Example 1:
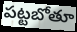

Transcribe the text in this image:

పట్టబోతూ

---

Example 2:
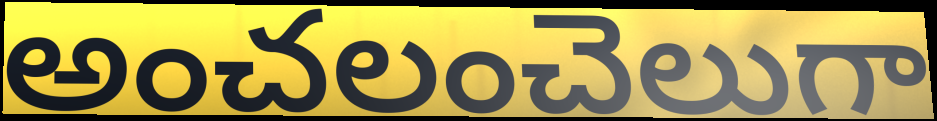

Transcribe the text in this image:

అంచలంచెలుగా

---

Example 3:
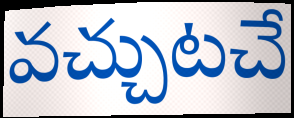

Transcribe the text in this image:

వచ్చుటచే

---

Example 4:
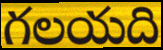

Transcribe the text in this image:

గలయది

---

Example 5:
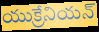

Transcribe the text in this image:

యుక్రేనియన్